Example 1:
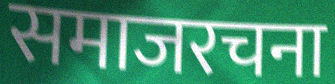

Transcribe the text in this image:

समाजरचना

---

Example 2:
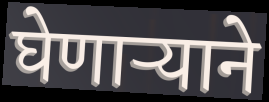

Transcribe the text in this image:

घेणाऱ्याने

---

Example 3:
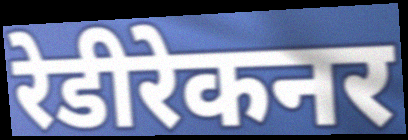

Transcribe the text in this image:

रेडीरेकनर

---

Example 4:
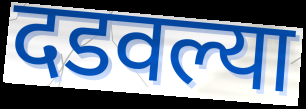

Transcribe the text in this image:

दडवल्या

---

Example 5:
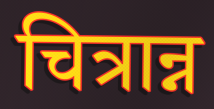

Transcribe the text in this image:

चित्रान्न